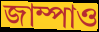
জাম্পাও